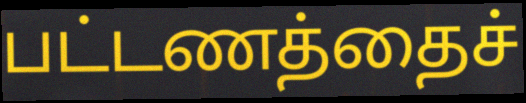
பட்டணத்தைச்